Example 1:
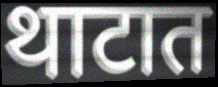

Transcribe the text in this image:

थाटात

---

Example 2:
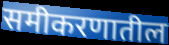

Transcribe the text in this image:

समीकरणातील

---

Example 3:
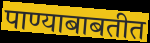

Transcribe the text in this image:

पाण्याबाबतीत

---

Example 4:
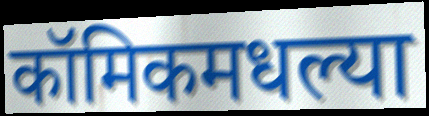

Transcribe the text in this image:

कॉमिकमधल्या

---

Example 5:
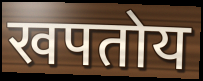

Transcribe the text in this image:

खपतोय